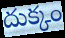
దుక్కం